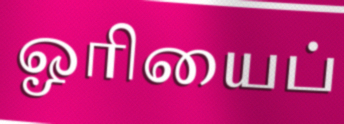
ஓரியைப்